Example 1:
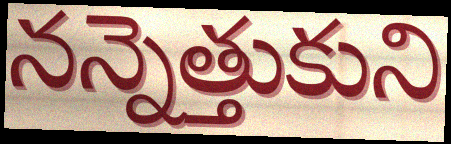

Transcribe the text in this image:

నన్నెత్తుకుని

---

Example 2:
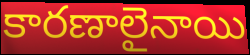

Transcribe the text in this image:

కారణాలైనాయి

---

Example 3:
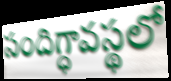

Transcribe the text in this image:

సందిగ్ధావస్థలో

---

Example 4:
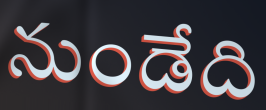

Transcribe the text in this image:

నుండేది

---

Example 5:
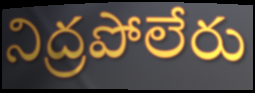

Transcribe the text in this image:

నిద్రపోలేరు